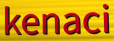
kenaci